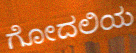
ಗೋದಲಿಯ